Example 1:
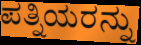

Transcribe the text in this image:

ಪತ್ನಿಯರನ್ನು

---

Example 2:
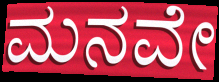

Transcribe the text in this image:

ಮನವೇ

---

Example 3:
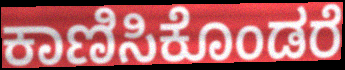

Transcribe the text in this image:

ಕಾಣಿಸಿಕೊಂಡರೆ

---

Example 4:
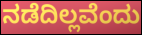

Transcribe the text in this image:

ನಡೆದಿಲ್ಲವೆಂದು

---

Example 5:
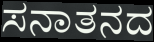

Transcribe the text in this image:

ಸನಾತನದ